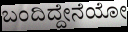
ಬಂದಿದ್ದೇನೆಯೋ